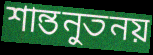
শান্তনুতনয়